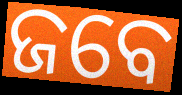
ଜବେ